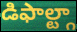
డిఫాల్ట్గా